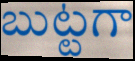
బుట్టగా